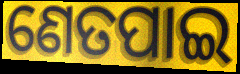
ଣେତପାଇ